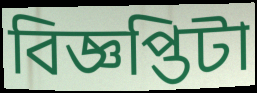
বিজ্ঞপ্তিটা